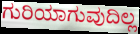
ಗುರಿಯಾಗುವುದಿಲ್ಲ